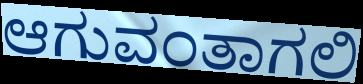
ಆಗುವಂತಾಗಲಿ